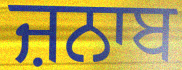
ਜ਼ਨਾਬ